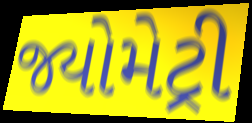
જ્યોમેટ્રી